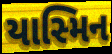
યાસ્મિન